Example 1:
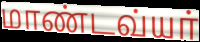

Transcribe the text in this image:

மாண்டவ்யர்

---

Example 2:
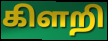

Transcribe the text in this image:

கிளறி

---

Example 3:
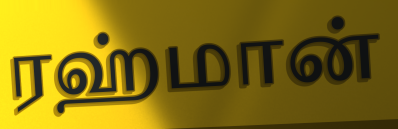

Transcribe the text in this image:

ரஹ்மான்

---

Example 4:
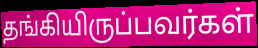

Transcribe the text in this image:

தங்கியிருப்பவர்கள்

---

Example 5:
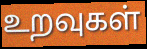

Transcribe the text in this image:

உறவுகள்